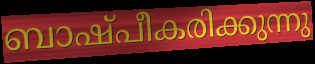
ബാഷ്പീകരിക്കുന്നു